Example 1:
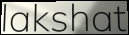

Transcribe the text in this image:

lakshat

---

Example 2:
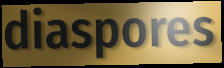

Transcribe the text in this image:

diaspores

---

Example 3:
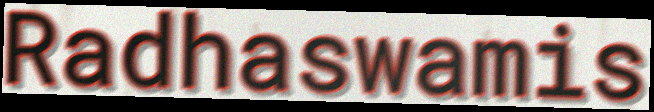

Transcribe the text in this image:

Radhaswamis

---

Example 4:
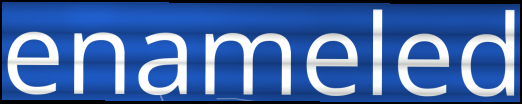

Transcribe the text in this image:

enameled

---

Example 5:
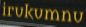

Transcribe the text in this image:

irukumnu